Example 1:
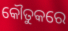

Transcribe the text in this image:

କୌତୁକରେ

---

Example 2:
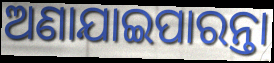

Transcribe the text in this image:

ଅଣାଯାଇପାରନ୍ତା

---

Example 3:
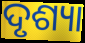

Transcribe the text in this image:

ଦୃଶ୍ୟା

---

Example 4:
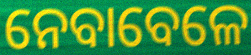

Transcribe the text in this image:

ନେବାବେଳେ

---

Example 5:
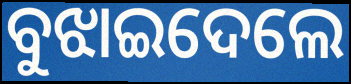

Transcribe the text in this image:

ବୁଝାଇଦେଲେ